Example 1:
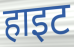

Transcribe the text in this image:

हाइट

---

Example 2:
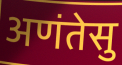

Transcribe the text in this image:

अणंतेसु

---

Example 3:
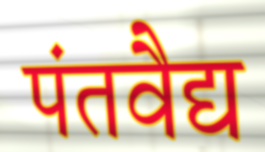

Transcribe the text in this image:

पंतवैद्य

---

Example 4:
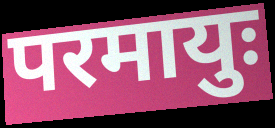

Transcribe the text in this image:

परमायुः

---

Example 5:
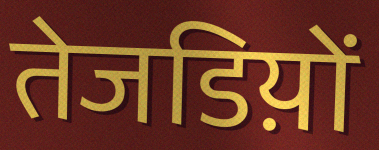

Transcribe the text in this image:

तेजडिय़ों